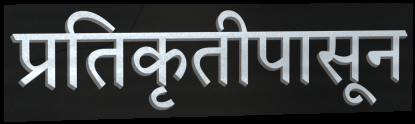
प्रतिकृतीपासून